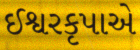
ઈશ્વરકૃપાએ